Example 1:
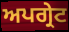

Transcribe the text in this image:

ਅਪਗ੍ਰੇਟ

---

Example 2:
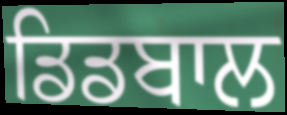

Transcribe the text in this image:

ਡਿਡਬਾਲ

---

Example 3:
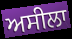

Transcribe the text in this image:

ਅਸੀਲਾ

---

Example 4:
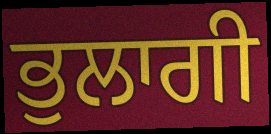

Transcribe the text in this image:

ਭੁਲਾਗੀ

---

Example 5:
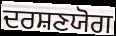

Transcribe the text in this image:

ਦਰਸ਼ਣਯੋਗ